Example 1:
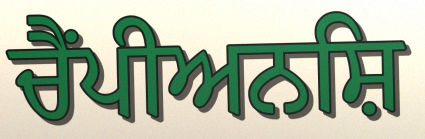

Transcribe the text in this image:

ਚੈਂਪੀਅਨਸ਼ਿ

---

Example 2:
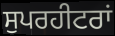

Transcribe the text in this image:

ਸੁਪਰਹੀਟਰਾਂ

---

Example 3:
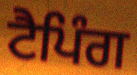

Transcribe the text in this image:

ਟੈਪਿੰਗ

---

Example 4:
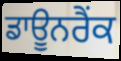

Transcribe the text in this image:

ਡਾਊਨਰੈਂਕ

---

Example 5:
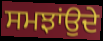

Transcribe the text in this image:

ਸਮਝਾਂਉਦੇ